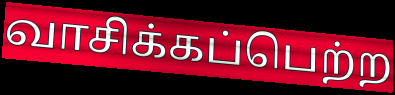
வாசிக்கப்பெற்ற